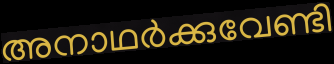
അനാഥർക്കുവേണ്ടി